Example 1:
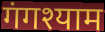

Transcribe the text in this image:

गंगश्याम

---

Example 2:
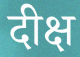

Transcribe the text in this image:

दीक्ष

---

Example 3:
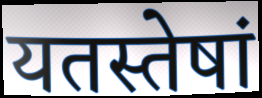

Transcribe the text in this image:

यतस्तेषां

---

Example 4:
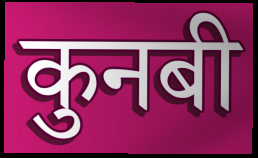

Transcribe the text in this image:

कुनबी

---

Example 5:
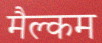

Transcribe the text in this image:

मैल्कम